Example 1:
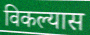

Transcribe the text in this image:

विकल्यास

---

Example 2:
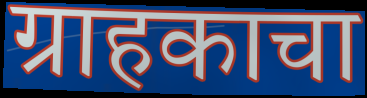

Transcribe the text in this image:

ग्राहकाचा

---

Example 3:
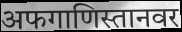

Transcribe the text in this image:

अफगाणिस्तानवर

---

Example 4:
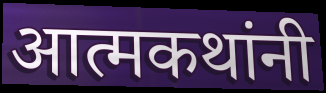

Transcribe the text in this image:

आत्मकथांनी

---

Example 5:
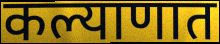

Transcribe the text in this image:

कल्याणात